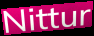
Nittur